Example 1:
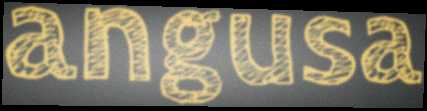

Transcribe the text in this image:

angusa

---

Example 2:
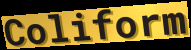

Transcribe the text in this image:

Coliform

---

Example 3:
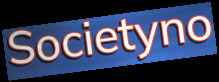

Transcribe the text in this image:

Societyno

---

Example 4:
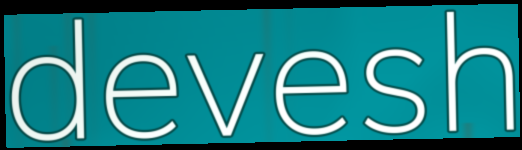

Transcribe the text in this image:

devesh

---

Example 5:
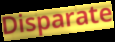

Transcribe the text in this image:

Disparate